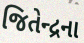
જિતેન્દ્રના